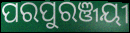
ପରପୁରଞ୍ଜୟୀ